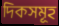
দিকসমূহ